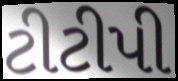
ટીટીપી